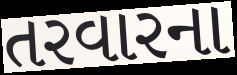
તરવારના